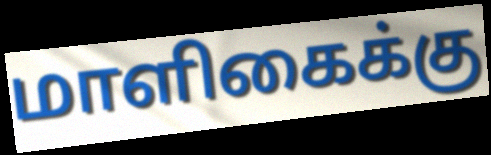
மாளிகைக்கு